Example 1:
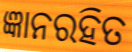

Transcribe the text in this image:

ଜ୍ଞାନରହିତ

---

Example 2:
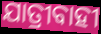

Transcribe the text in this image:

ଯାତ୍ରୀବାହୀ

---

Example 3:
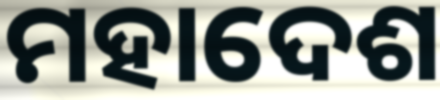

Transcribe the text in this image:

ମହାଦେଶ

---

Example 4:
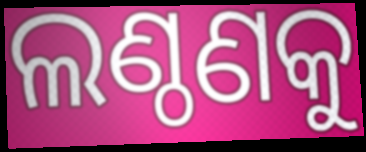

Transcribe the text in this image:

ଲଣ୍ଠଣକୁ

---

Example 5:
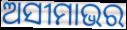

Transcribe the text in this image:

ଅସୀମାଭର